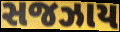
સજઝાય